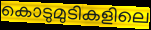
കൊടുമുടികളിലെ